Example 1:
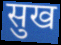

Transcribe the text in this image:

सुख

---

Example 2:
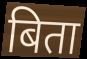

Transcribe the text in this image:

बिता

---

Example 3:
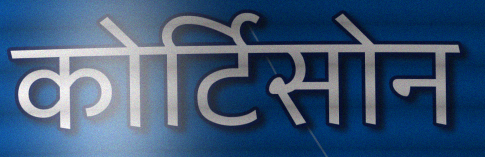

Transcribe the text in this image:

कोर्टिसोन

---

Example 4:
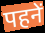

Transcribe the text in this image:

पहनें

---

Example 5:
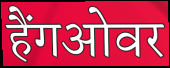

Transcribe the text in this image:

हैंगओवर